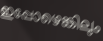
ഇപ്പോഴെങ്കിലും